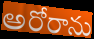
అరోరాను